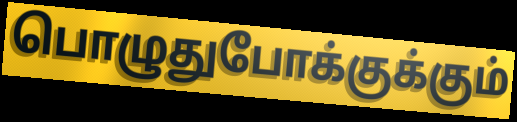
பொழுதுபோக்குக்கும்